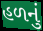
હળનું